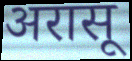
अरासू